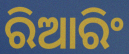
ରିଆରିଂ